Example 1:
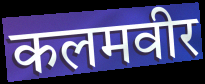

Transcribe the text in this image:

कलमवीर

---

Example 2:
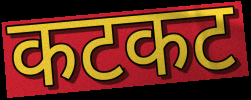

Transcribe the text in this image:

कटकट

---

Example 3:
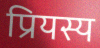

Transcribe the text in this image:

प्रियस्य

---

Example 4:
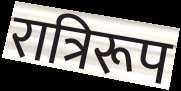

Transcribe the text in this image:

रात्रिरूप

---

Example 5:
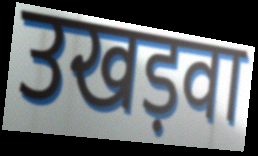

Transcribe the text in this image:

उखड़वा